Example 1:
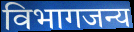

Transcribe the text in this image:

विभागजन्य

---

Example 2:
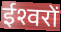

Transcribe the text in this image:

ईश्वरों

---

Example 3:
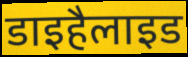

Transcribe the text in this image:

डाइहैलाइड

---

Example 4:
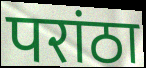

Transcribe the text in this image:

परांठा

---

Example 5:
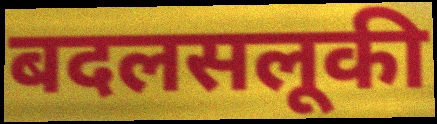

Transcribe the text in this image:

बदलसलूकी